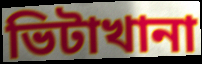
ভিটাখানা